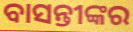
ବାସନ୍ତୀଙ୍କର